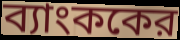
ব্যাংককের